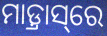
ମାଡ଼୍ରାସ୍‌ରେ